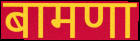
बामणा